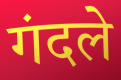
गंदले